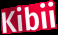
Kibii